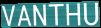
VANTHU